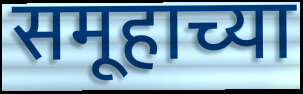
समूहाच्या